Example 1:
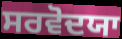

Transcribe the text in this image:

ਸਰਵੋਦਯਾ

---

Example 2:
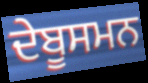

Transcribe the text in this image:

ਦੇਬੂਸਮਨ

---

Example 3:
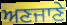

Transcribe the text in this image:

ਅਣਜਾਣੇ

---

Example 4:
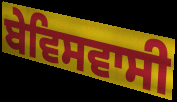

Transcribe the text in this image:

ਬੇਵਿਸਵਾਸੀ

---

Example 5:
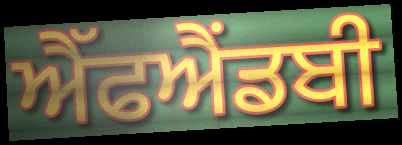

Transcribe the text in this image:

ਐੱਫਐਂਡਬੀ